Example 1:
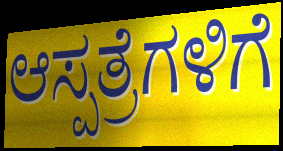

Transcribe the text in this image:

ಆಸ್ಪತ್ರೆಗಳಿಗೆ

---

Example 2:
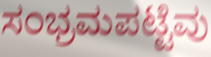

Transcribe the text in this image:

ಸಂಭ್ರಮಪಟ್ಟೆವು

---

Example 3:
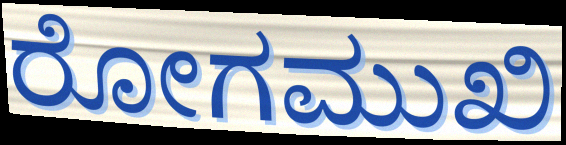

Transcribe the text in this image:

ರೋಗಮುಖಿ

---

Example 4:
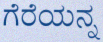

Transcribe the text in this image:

ಗೆರೆಯನ್ನ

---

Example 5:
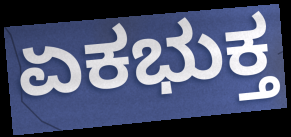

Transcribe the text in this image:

ಏಕಭುಕ್ತ